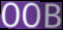
OOB